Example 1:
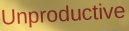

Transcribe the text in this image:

Unproductive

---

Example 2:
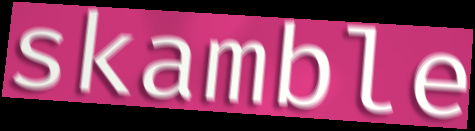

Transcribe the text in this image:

skamble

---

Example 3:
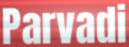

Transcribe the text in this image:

Parvadi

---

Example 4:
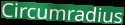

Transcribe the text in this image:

Circumradius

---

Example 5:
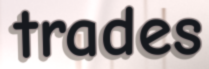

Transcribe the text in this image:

trades